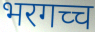
भरगच्च